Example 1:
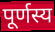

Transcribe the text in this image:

पूर्णस्य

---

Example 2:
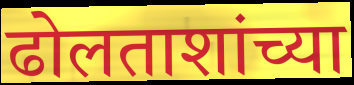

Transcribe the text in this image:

ढोलताशांच्या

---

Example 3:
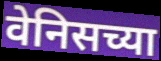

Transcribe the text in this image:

वेनिसच्या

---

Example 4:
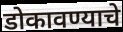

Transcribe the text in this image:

डोकावण्याचे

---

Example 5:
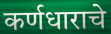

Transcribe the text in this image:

कर्णधाराचे